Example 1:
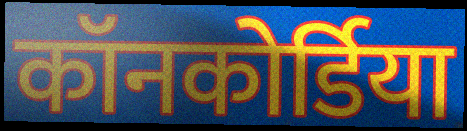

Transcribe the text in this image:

कॉनकोर्डिया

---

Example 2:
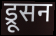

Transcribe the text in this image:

ड्रूसन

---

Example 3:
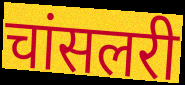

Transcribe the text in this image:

चांसलरी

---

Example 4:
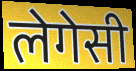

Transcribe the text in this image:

लेगेसी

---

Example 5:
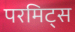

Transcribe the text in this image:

परमिट्स